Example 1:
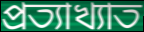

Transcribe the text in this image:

প্রত্যাখ্যাত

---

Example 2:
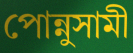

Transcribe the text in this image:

পোন্নুসামী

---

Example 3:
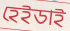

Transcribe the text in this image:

হেইডাই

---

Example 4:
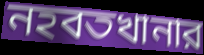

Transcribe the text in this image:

নহবতখানার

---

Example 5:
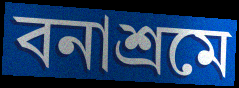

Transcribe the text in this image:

বনাশ্রমে